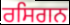
ਰਸਿਗਨ